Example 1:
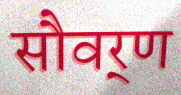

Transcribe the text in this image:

सौवर्ण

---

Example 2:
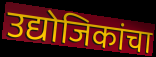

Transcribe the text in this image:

उद्योजिकांचा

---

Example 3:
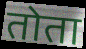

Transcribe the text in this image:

तोता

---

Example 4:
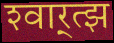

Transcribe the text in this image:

श्वार्त्झ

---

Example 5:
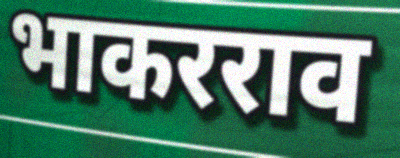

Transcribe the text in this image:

भाकरराव